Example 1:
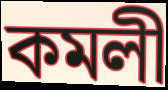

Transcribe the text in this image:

কমলী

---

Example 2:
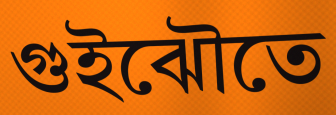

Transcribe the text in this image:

গুইঝৌতে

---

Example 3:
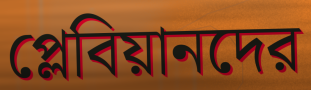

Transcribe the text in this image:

প্লেবিয়ানদের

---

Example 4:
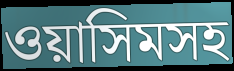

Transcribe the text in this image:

ওয়াসিমসহ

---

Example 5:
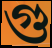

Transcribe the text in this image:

গু